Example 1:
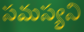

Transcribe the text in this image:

సమస్యని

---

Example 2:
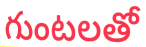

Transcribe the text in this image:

గుంటలతో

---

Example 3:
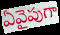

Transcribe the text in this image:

ఏవైపుగా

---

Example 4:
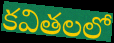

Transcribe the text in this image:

కవితలలో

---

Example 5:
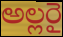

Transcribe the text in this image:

అల్లరై